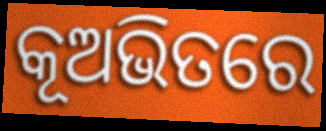
କୂଅଭିତରେ